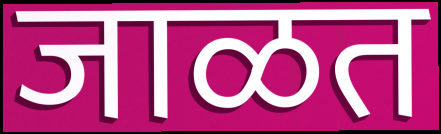
जाळत